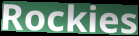
Rockies